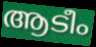
ആടീം